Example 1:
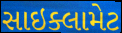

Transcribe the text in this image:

સાઇક્લામેટ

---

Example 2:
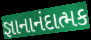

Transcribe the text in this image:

જ્ઞાનાનંદાત્મક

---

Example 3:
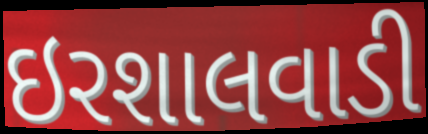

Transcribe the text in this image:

ઇરશાલવાડી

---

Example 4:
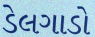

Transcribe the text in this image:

ડેલગાડો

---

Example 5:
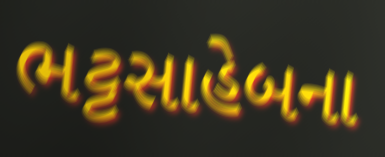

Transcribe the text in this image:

ભટ્ટસાહેબના